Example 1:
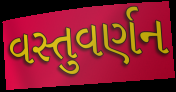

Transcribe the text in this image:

વસ્તુવર્ણન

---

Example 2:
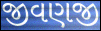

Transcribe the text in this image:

જીવણજી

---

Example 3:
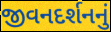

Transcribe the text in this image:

જીવનદર્શનનું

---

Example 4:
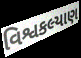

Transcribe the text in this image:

વિશ્વકલ્યાણ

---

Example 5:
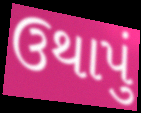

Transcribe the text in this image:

ઉથાપું